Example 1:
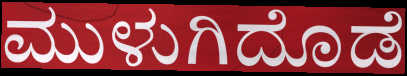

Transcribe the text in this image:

ಮುಳುಗಿದೊಡೆ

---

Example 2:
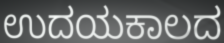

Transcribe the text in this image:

ಉದಯಕಾಲದ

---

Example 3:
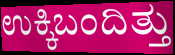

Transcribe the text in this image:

ಉಕ್ಕಿಬಂದಿತ್ತು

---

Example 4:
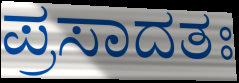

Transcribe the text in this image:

ಪ್ರಸಾದತಃ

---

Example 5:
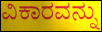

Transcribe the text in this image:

ವಿಕಾರವನ್ನು